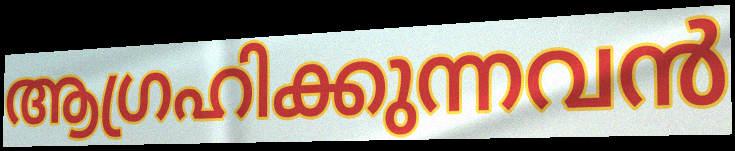
ആഗ്രഹിക്കുന്നവൻ